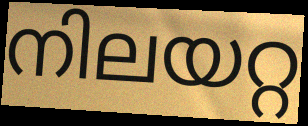
നിലയറ്റ